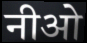
नीओ